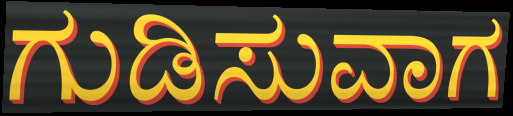
ಗುಡಿಸುವಾಗ